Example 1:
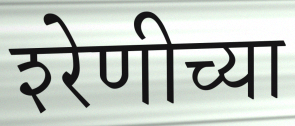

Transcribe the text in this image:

श्रेणीच्या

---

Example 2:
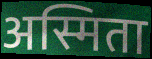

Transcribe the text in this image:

अस्मिता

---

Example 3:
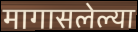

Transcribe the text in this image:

मागासलेल्या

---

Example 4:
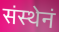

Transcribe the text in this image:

संस्थेनं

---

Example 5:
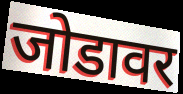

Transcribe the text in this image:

जोडावर